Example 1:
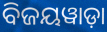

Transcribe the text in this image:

ବିଜୟୱାଡ଼ା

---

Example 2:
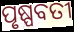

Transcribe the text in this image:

ପୃଷ୍ପବତୀ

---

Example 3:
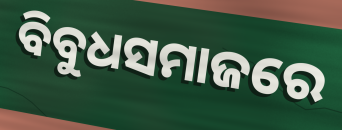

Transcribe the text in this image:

ବିବୁଧସମାଜରେ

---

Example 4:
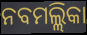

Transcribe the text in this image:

ନବମଲ୍ଲିକା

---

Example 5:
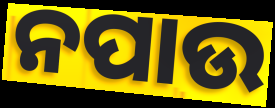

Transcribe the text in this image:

ନପାଉ